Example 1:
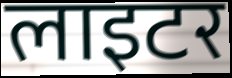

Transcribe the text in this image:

लाइटर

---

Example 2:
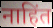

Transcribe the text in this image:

नाहिंत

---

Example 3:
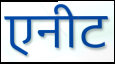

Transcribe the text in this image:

एनीट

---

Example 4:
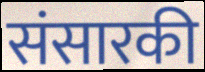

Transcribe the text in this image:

संसारकी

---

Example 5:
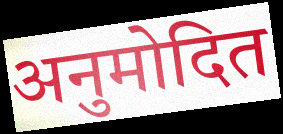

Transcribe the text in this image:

अनुमोदित